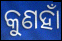
କୁଣହାଁ